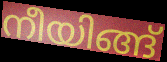
നീയിങ്ങ്